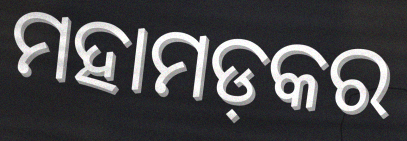
ମହାମଡ଼କର